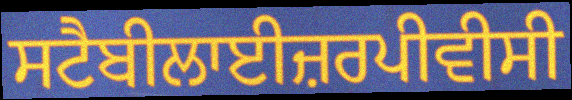
ਸਟੈਬੀਲਾਈਜ਼ਰਪੀਵੀਸੀ